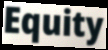
Equity